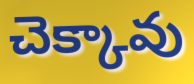
చెక్కావు